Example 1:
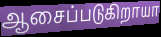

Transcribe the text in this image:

ஆசைப்படுகிறாயா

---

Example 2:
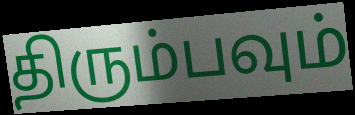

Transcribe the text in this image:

திரும்பவும்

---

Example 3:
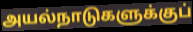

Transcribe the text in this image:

அயல்நாடுகளுக்குப்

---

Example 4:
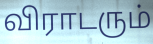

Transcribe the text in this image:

விராடரும்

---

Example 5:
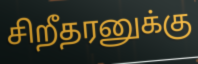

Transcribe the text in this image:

சிறீதரனுக்கு